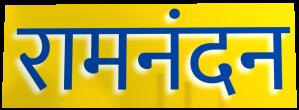
रामनंदन